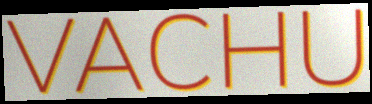
VACHU